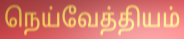
நெய்வேத்தியம்